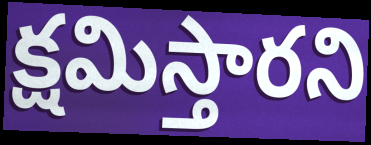
క్షమిస్తారని